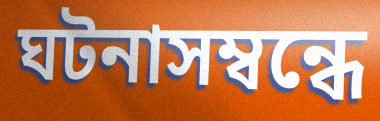
ঘটনাসম্বন্ধে